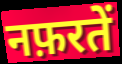
नफ़रतें